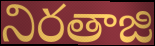
నిరతాజి